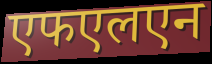
एफएलएन